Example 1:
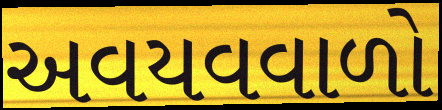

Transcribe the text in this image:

અવયવવાળો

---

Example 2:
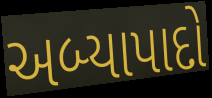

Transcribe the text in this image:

અબ્યાપાદો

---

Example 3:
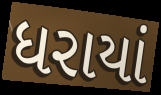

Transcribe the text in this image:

ધરાયાં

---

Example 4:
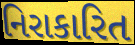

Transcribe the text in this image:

નિરાકારિત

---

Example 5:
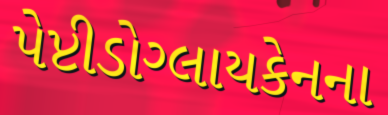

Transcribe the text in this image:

પેપ્ટીડોગ્લાયકેનના